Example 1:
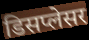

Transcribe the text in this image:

डिसप्लेसर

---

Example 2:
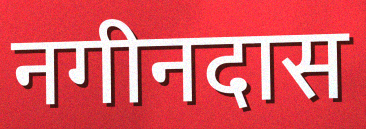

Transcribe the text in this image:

नगीनदास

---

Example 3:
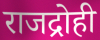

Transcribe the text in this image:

राजद्रोही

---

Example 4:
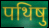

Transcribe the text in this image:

पथिषु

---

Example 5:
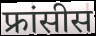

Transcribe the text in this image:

फ्रांसीस